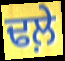
ਢਲ਼ੇ